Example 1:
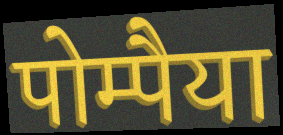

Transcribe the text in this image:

पोम्पैया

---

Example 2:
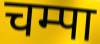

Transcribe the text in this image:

चम्पा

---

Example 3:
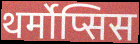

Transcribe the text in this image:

थर्मोप्सिस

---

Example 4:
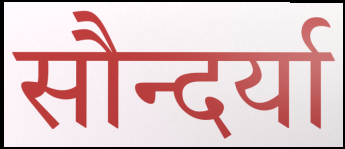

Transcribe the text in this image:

सौन्दर्या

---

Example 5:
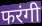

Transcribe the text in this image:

फरंगी